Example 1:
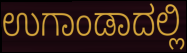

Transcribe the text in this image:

ಉಗಾಂಡಾದಲ್ಲಿ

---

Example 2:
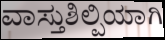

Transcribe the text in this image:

ವಾಸ್ತುಶಿಲ್ಪಿಯಾಗಿ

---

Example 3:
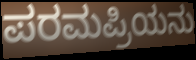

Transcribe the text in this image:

ಪರಮಪ್ರಿಯನು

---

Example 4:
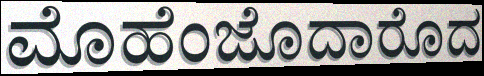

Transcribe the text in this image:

ಮೊಹೆಂಜೊದಾರೊದ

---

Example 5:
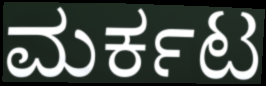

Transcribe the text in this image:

ಮರ್ಕಟ